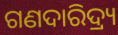
ଗଣଦାରିଦ୍ର୍ୟ